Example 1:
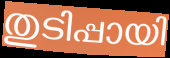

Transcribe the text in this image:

തുടിപ്പായി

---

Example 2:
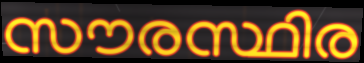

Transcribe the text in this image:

സൗരസ്ഥിര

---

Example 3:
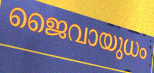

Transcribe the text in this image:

ജൈവായുധം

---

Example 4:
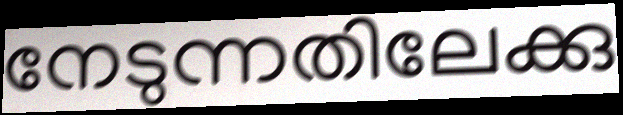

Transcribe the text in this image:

നേടുന്നതിലേക്കു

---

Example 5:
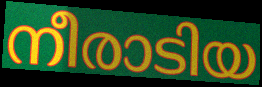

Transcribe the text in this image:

നീരാടിയ